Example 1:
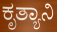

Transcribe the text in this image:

ಕೃತ್ಯಾನಿ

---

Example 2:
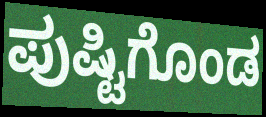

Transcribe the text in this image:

ಪುಷ್ಟಿಗೊಂಡ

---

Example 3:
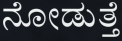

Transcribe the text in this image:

ನೋಡುತ್ತೆ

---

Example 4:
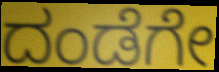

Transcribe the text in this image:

ದಂಡೆಗೇ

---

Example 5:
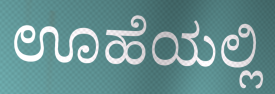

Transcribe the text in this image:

ಊಹೆಯಲ್ಲಿ